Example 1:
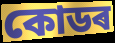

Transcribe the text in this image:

কোডৰ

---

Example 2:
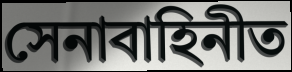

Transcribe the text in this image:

সেনাবাহিনীত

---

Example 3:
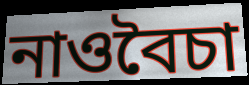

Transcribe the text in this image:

নাওবৈচা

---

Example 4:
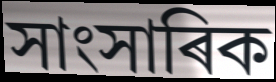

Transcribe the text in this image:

সাংসাৰিক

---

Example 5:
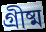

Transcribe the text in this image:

গ্ৰীষ্ম